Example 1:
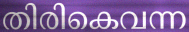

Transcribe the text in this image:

തിരികെവന്ന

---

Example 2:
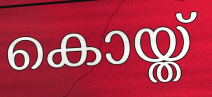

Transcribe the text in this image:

കൊയ്ത്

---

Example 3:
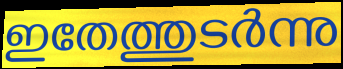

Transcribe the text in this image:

ഇതേത്തുടർന്നു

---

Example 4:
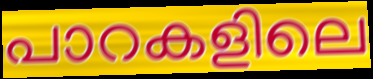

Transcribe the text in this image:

പാറകളിലെ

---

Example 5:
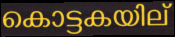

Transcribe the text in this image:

കൊട്ടകയില്